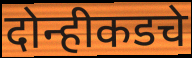
दोन्हीकडचे